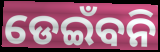
ଡେଇଁବନି